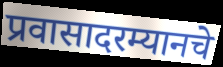
प्रवासादरम्यानचे